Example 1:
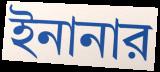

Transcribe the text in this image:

ইনানার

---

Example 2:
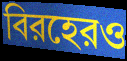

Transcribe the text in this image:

বিরহেরও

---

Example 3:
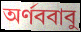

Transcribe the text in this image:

অর্ণববাবু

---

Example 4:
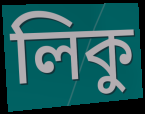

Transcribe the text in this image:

লিকু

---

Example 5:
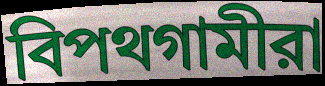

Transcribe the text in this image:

বিপথগামীরা